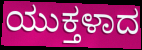
ಯುಕ್ತಳಾದ